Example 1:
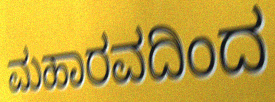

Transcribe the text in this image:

ಮಹಾರವದಿಂದ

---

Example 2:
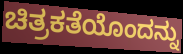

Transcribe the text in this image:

ಚಿತ್ರಕತೆಯೊಂದನ್ನು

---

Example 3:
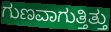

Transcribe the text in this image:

ಗುಣವಾಗುತ್ತಿತ್ತು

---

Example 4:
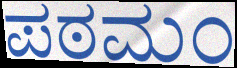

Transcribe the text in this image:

ಪಠಮಂ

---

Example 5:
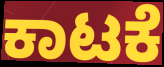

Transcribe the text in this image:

ಕಾಟಕೆ